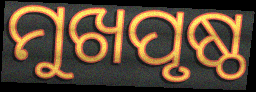
ମୁଖପୃଷ୍ଠ